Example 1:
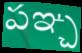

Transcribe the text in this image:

పఞ్చ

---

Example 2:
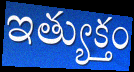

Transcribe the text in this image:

ఇత్యుక్తం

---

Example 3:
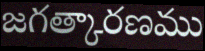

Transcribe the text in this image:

జగత్కారణము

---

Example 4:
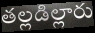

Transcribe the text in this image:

తల్లడిల్లారు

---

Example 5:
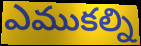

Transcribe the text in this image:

ఎముకల్ని